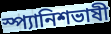
স্প্যানিশভাষী